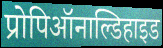
प्रोपिऑनाल्डिहाइड